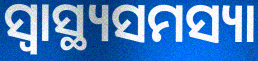
ସ୍ୱାସ୍ଥ୍ୟସମସ୍ୟା